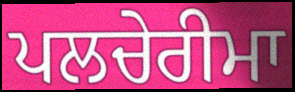
ਪਲਚੇਰੀਮਾ